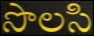
సొలసి